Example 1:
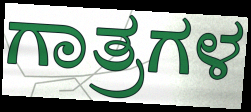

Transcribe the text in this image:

ಗಾತ್ರಗಳ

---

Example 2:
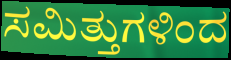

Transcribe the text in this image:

ಸಮಿತ್ತುಗಳಿಂದ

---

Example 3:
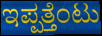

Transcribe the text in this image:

ಇಪ್ಪತ್ತೆಂಟು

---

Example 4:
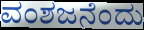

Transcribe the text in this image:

ವಂಶಜನೆಂದು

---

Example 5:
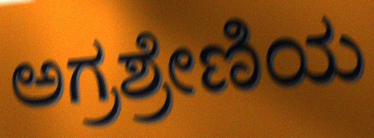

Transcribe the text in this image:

ಅಗ್ರಶ್ರೇಣಿಯ